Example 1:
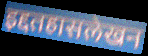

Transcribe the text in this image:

इद्दतहासलेखन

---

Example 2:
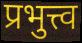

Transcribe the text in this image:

प्रभुत्त्व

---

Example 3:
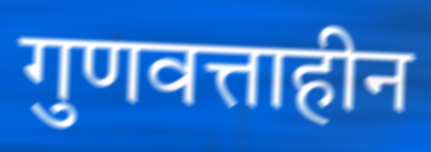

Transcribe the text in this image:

गुणवत्ताहीन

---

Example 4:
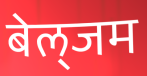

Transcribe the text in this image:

बेल्जम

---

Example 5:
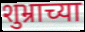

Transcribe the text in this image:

शुभ्राच्या